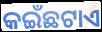
କଇଁଛଟାଏ